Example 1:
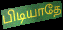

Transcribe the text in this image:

பிடியாதே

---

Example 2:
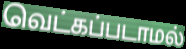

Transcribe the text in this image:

வெட்கப்படாமல்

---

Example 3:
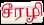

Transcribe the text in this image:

சீரழி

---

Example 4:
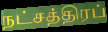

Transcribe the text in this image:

நட்சத்திரப்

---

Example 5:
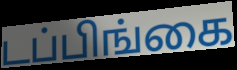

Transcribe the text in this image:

டப்பிங்கை